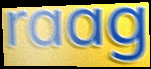
raag